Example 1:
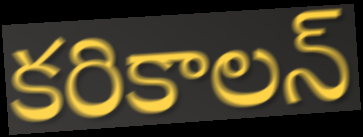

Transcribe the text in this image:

కరికాలన్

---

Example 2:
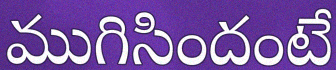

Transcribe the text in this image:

ముగిసిందంటే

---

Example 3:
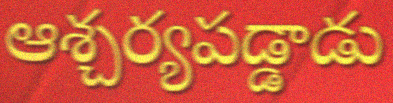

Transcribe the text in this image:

ఆశ్చర్యపడ్డాడు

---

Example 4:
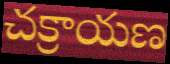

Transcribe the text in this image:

చక్రాయణ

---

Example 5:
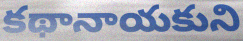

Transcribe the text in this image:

కథానాయకుని